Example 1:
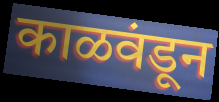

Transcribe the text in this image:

काळवंडून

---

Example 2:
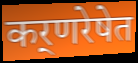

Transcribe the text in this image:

कर्णरेषेत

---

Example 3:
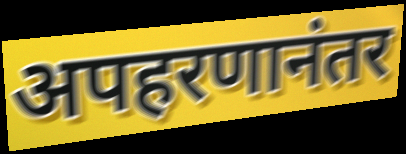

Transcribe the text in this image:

अपहरणानंतर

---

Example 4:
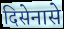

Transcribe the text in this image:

दिसेनासे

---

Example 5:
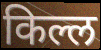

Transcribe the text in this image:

किल्ल